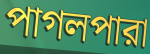
পাগলপারা